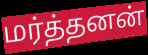
மர்த்தனன்